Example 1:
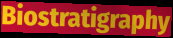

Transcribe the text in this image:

Biostratigraphy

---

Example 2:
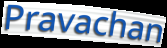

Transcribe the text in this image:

Pravachan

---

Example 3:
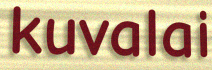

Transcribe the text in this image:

kuvalai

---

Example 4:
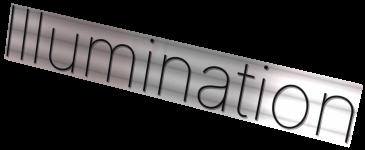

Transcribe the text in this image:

Illumination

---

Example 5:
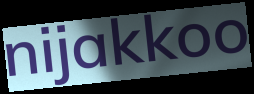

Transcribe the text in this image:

nijakkoo